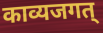
काव्यजगत्